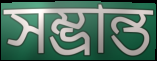
সম্ভ্ৰান্ত